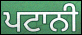
ਪਟਾਨੀ